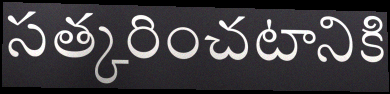
సత్కరించటానికి